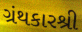
ગ્રંથકારશ્રી